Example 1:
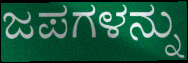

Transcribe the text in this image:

ಜಪಗಳನ್ನು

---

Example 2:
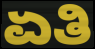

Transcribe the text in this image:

ಏತಿ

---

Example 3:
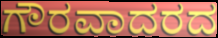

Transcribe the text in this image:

ಗೌರವಾದರದ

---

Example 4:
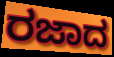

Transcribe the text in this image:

ರಜಾದ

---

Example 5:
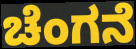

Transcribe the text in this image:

ಚೆಂಗನೆ